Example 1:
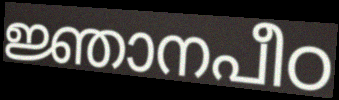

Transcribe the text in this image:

ജ്ഞാനപീഠ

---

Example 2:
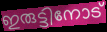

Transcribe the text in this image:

ഇരുട്ടിനോട്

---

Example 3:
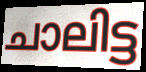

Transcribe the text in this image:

ചാലിട്ട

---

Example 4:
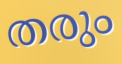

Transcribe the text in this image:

തരും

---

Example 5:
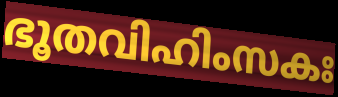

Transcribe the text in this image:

ഭൂതവിഹിംസകഃ